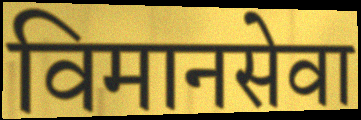
विमानसेवा